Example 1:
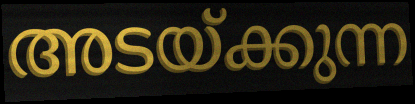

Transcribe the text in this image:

അടയ്ക്കുന്ന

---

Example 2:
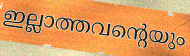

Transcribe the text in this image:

ഇല്ലാത്തവന്റെയും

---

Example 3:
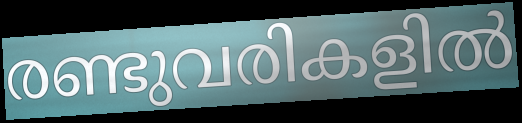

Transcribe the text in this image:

രണ്ടുവരികളിൽ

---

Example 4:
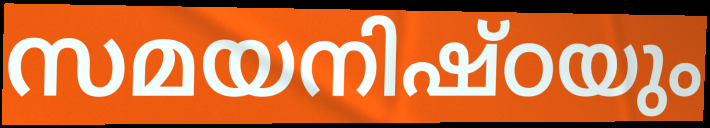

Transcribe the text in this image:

സമയനിഷ്ഠയും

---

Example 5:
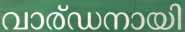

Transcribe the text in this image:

വാര്ഡനായി